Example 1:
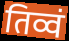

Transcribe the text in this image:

तिव्वं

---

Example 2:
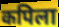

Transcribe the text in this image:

कपिला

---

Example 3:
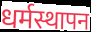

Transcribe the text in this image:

धर्मस्थापन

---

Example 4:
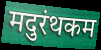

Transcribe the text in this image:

मदुरंथकम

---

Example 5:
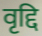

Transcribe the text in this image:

वृद्दि